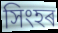
সিংহৰ